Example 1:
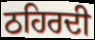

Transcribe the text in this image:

ਠਹਿਰਦੀ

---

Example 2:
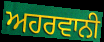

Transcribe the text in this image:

ਅਹਰਵਾਨੀ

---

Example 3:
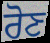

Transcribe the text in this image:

ਰੋਣ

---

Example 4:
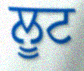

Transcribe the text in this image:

ਲੂਟ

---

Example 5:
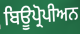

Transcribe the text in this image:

ਬਿਊਪ੍ਰੋਪੀਅਨ